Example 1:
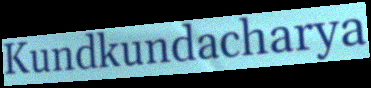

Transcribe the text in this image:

Kundkundacharya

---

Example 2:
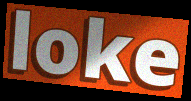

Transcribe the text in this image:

loke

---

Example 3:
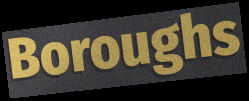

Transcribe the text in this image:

Boroughs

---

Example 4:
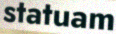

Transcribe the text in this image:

statuam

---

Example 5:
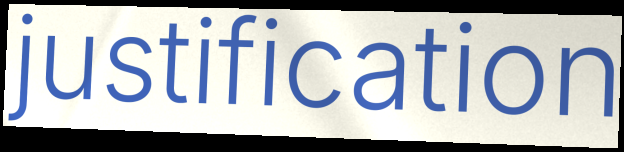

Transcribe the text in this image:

justification